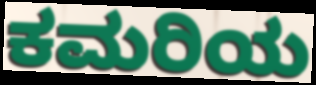
ಕಮರಿಯ